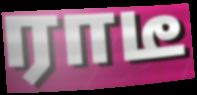
ராடீ